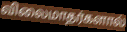
விலைமாதர்களால்